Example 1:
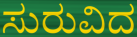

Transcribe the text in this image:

ಸುರುವಿದ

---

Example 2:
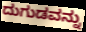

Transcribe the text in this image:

ದುಗುಡವನ್ನು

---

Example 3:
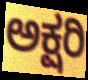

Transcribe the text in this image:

ಅಕ್ಷರಿ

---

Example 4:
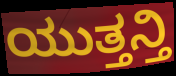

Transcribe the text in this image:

ಯುತ್ತನ್ತಿ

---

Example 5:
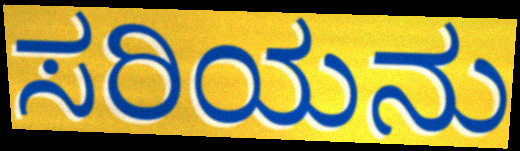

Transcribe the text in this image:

ಸರಿಯನು